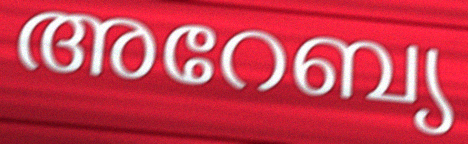
അറേബ്യ